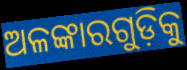
ଅଳଙ୍କାରଗୁଡ଼ିକୁ